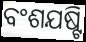
ବଂଶଯଷ୍ଟି